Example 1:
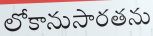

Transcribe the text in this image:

లోకానుసారతను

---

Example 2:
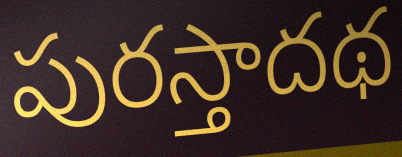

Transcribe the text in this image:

పురస్తాదథ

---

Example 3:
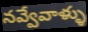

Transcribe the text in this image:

నవ్వేవాళ్ళు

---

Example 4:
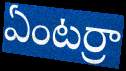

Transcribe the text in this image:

ఏంటర్రా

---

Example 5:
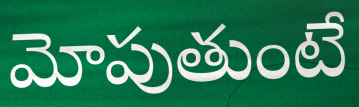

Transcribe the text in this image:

మోపుతుంటే